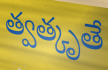
త్వత్కృతే